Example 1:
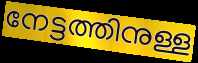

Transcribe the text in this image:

നേട്ടത്തിനുള്ള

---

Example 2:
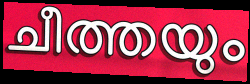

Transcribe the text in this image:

ചീത്തയും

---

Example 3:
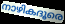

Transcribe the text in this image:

നാഴികദൂരെ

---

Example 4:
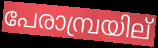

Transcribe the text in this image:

പേരാമ്പ്രയില്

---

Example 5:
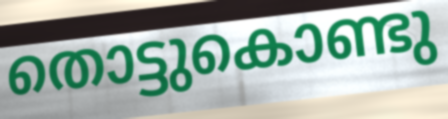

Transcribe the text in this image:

തൊട്ടുകൊണ്ടു